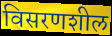
विसरणशील